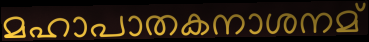
മഹാപാതകനാശനമ്